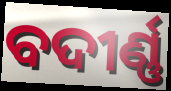
ବଦୀର୍ଣ୍ଣ